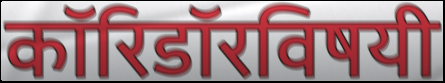
कॉरिडॉरविषयी